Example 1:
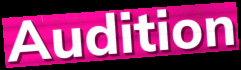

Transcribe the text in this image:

Audition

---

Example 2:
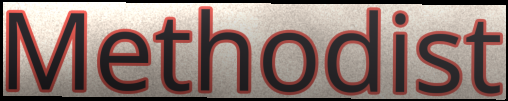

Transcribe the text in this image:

Methodist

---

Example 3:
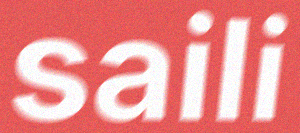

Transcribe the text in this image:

saili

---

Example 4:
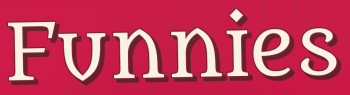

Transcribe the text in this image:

Funnies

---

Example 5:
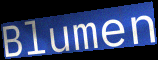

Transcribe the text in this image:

Blumen